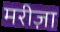
मरीज़ा